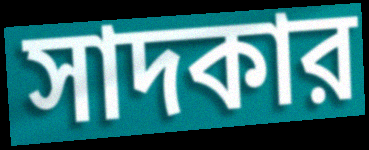
সাদকার